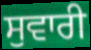
ਸੁਵਾਰੀ